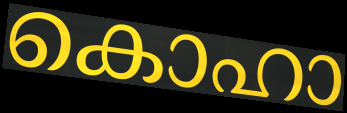
കൊഹാ